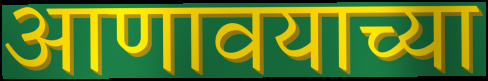
आणावयाच्या